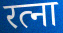
रत्ना